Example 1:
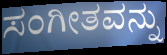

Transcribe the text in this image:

ಸಂಗೀತವನ್ನು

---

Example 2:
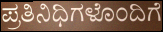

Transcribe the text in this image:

ಪ್ರತಿನಿಧಿಗಳೊಂದಿಗೆ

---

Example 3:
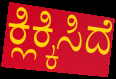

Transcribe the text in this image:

ಕ್ಲಿಕ್ಕಿಸಿದೆ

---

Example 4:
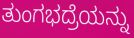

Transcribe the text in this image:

ತುಂಗಭದ್ರೆಯನ್ನು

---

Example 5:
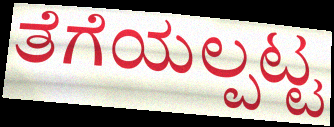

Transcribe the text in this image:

ತೆಗೆಯಲ್ಪಟ್ಟ